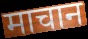
माचान